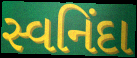
સ્વનિંદા